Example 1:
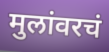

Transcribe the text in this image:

मुलांवरचं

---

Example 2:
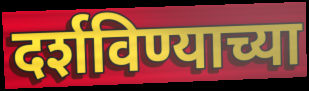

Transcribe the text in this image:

दर्शविण्याच्या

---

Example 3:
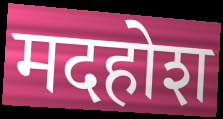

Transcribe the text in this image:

मदहोश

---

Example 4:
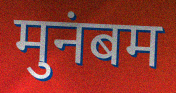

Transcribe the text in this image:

मुनंबम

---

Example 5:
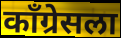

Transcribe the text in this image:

काँग्रेसला